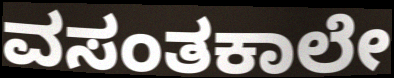
ವಸಂತಕಾಲೇ